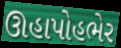
ઊહાપોહભેર